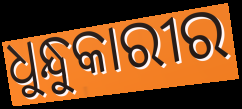
ଧୁନ୍ଧୁକାରୀର